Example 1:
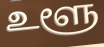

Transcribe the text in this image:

உளூ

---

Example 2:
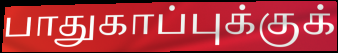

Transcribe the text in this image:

பாதுகாப்புக்குக்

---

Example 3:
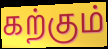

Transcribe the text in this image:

கற்கும்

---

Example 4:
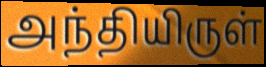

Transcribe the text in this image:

அந்தியிருள்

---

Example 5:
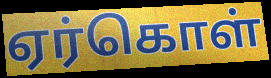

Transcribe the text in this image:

ஏர்கொள்